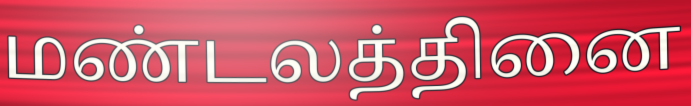
மண்டலத்தினை